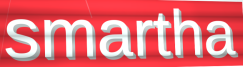
smartha